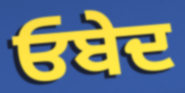
ਓਬੇਦ